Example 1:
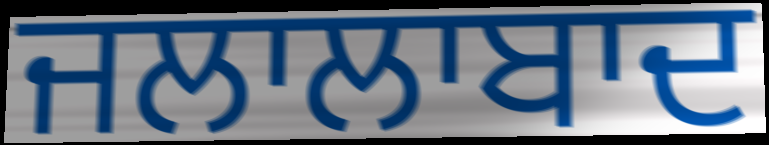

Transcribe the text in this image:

ਜਲਾਲਾਬਾਦ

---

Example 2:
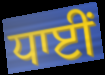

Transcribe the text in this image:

ਧਾਈਂ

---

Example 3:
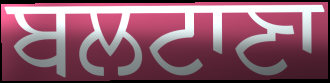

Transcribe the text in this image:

ਬਲਟਾਣਾ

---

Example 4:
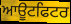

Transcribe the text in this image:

ਆਊਟਫਿਟਰ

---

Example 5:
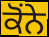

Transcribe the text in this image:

ਕੋਂਨੇ